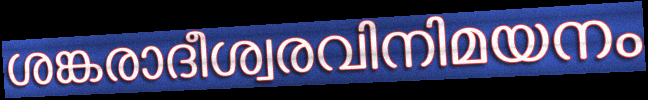
ശങ്കരാദീശ്വരവിനിമയനം